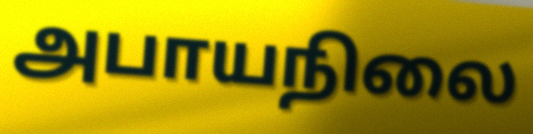
அபாயநிலை